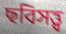
ছবিসত্ত্ব